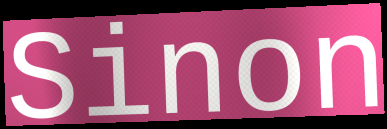
Sinon